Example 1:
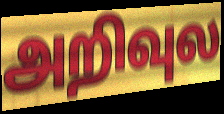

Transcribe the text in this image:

அறிவுல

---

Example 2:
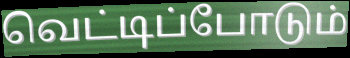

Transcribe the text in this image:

வெட்டிப்போடும்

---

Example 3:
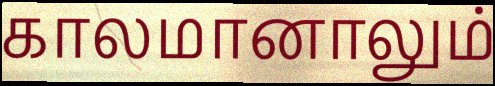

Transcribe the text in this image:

காலமானாலும்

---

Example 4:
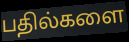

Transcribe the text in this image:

பதில்களை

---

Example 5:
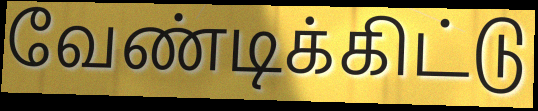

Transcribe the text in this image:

வேண்டிக்கிட்டு